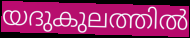
യദുകുലത്തിൽ